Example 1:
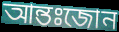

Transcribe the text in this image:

আন্তঃজোন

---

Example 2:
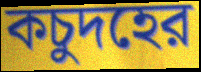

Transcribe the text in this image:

কচুদহের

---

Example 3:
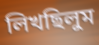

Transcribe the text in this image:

লিখছিলুম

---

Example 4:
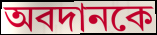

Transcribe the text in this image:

অবদানকে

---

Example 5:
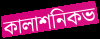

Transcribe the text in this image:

কালাশনিকভ